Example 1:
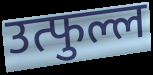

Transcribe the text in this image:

उत्फुल्ल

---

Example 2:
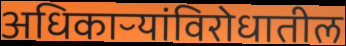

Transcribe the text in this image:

अधिकाऱ्यांविरोधातील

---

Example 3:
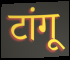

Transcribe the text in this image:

टांगू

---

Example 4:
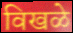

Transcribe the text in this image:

विखळे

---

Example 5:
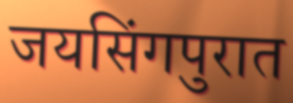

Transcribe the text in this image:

जयसिंगपुरात